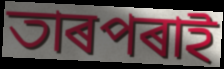
তাৰপৰাই